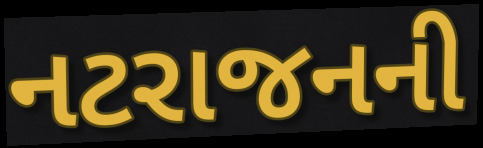
નટરાજનની